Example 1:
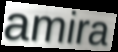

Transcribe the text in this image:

amira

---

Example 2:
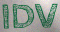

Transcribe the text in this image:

IDV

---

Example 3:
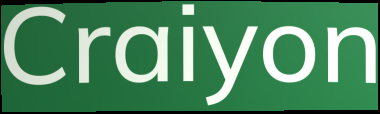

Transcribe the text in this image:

Craiyon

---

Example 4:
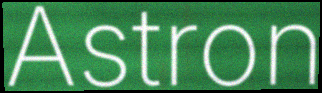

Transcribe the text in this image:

Astron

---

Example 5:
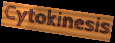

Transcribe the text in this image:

Cytokinesis